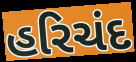
હરિચંદ